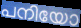
പനിയോ